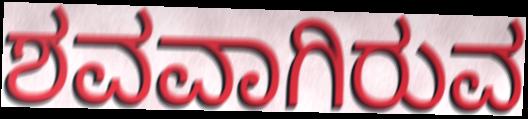
ಶವವಾಗಿರುವ